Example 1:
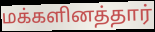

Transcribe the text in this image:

மக்களினத்தார்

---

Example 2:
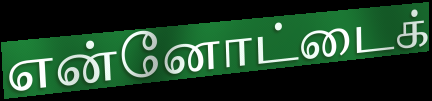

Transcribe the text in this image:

என்னோட்டைக்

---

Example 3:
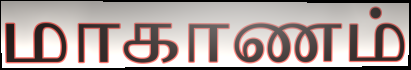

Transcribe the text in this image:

மாகாணம்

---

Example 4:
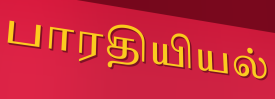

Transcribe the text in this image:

பாரதியியல்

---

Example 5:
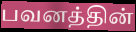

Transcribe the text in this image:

பவனத்தின்